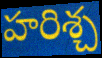
హరిశ్చ